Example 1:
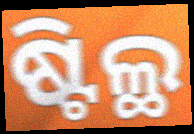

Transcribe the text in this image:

ଷ୍ଟିଲ୍ଥ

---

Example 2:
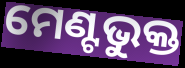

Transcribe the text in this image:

ମେଣ୍ଟଭୁକ୍ତ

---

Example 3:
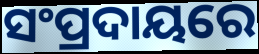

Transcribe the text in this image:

ସଂପ୍ରଦାୟରେ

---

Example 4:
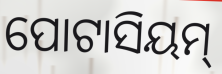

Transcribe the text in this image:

ପୋଟାସିୟମ୍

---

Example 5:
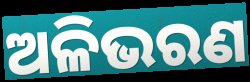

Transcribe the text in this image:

ଅଳିଭରଣ